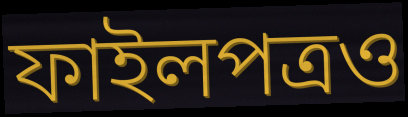
ফাইলপত্রও